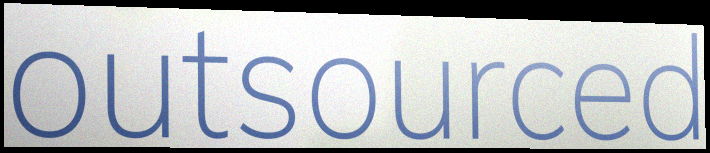
outsourced